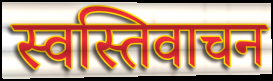
स्वस्तिवाचन